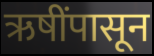
ऋषींपासून